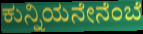
ಕುನ್ನಿಯನೇನೆಂಬೆ